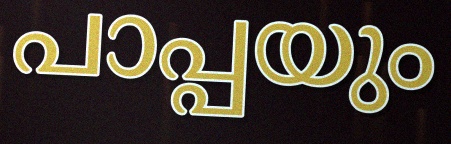
പാപ്പയും